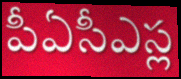
పీఏసీఎస్ల